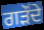
ਗੜੌਂਦੇ